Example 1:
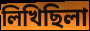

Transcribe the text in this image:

লিখিছিলা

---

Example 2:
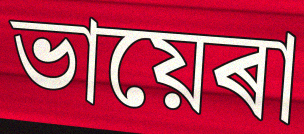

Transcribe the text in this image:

ভায়েৰা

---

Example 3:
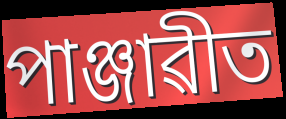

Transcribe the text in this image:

পাঞ্জাৱীত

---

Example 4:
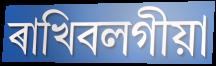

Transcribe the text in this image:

ৰাখিবলগীয়া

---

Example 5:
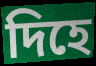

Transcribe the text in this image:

দিহে